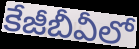
కేజీబీవీలో